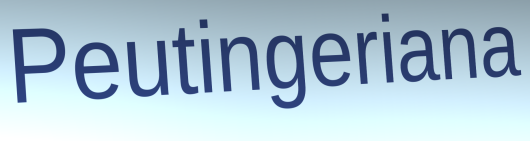
Peutingeriana